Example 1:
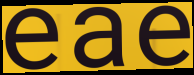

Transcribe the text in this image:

eae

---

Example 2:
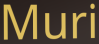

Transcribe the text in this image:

Muri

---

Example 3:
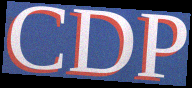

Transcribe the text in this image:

CDP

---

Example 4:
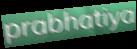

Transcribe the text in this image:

prabhatiya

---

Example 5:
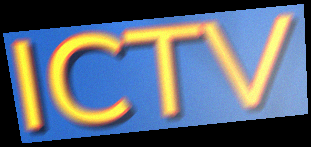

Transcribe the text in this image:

ICTV